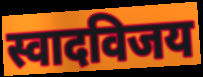
स्वादविजय